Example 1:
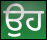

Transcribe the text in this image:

ਉਹ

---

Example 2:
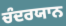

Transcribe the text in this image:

ਚੰਦਰਯਾਨ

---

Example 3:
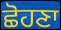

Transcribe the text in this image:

ਛੋਹਣਾ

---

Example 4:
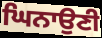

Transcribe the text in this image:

ਘਿਨਾਉਣੀ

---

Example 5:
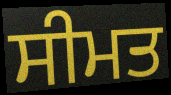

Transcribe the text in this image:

ਸੀਮਤ